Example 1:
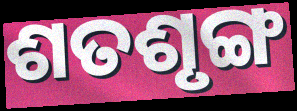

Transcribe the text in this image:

ଶତଶୃଙ୍ଗ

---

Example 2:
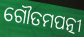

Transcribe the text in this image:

ଗୌତମପତ୍ନୀ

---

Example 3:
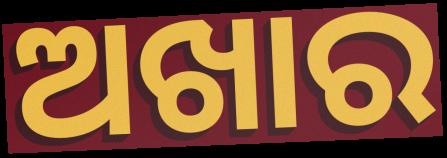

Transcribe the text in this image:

ଅଖାର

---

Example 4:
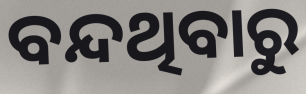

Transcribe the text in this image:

ବନ୍ଦଥିବାରୁ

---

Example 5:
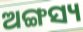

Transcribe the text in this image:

ଅଙ୍ଗସ୍ୟ